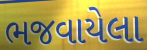
ભજવાયેલા